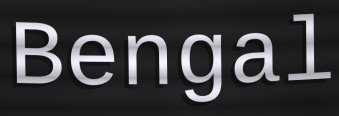
Bengal